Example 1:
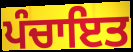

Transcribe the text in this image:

ਪੰਚਾਇਤ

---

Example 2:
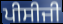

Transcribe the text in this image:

ਪੀਸੀਜੀ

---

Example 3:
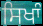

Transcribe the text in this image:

ਸਿਖਾੰ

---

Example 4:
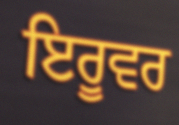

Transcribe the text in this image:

ਇਰੂਵਰ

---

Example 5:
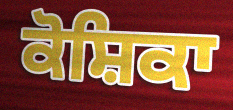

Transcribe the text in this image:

ਕੋਸ਼ਿਕਾ